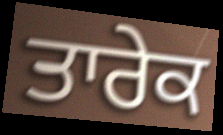
ਤਾਰੇਕ